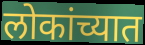
लोकांच्यात